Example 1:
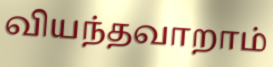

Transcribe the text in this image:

வியந்தவாறாம்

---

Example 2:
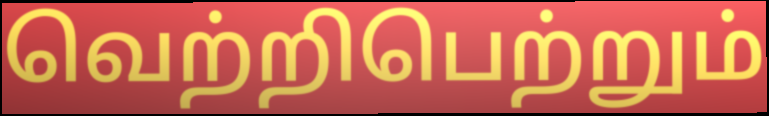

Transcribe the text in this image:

வெற்றிபெற்றும்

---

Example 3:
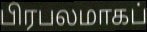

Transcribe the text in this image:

பிரபலமாகப்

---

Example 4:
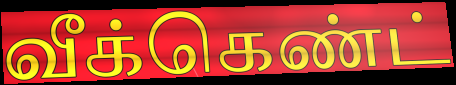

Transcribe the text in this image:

வீக்கெண்ட்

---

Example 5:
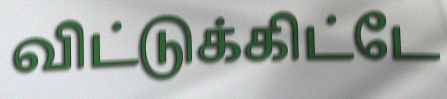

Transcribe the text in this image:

விட்டுக்கிட்டே